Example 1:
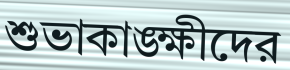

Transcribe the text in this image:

শুভাকাঙ্ক্ষীদের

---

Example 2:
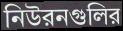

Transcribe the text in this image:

নিউরনগুলির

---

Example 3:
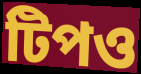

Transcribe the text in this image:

টিপও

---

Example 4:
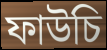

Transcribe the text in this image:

ফাউচি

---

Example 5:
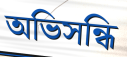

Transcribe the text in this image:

অভিসন্ধি